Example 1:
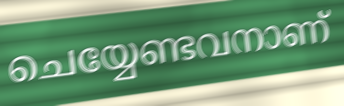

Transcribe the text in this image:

ചെയ്യേണ്ടവനാണ്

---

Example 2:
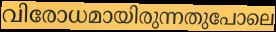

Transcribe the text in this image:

വിരോധമായിരുന്നതുപോലെ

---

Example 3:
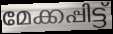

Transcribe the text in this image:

മേക്കപ്പിട്ട്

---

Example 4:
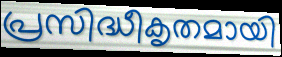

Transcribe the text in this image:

പ്രസിദ്ധീകൃതമായി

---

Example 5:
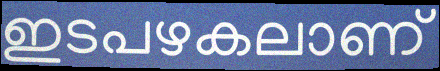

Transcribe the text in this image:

ഇടപഴകലാണ്